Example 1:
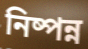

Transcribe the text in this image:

নিষ্পন্ন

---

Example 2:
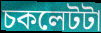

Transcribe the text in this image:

চকলেটটা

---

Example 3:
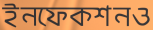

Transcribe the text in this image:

ইনফেকশনও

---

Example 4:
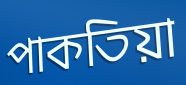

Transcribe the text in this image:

পাকতিয়া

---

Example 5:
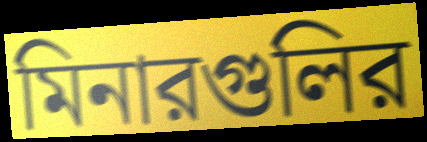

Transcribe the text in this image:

মিনারগুলির